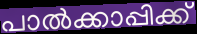
പാൽക്കാപ്പിക്ക്